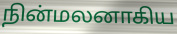
நின்மலனாகிய